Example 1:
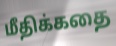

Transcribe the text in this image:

மீதிக்கதை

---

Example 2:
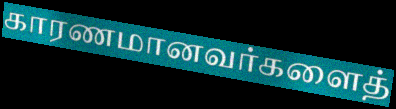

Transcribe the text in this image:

காரணமானவர்களைத்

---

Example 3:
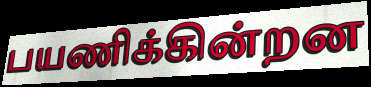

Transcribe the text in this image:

பயணிக்கின்றன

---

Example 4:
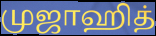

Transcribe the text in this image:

முஜாஹித்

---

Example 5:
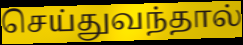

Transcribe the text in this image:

செய்துவந்தால்